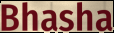
Bhasha